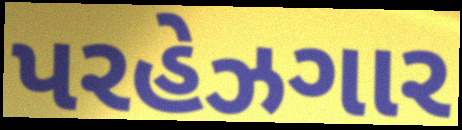
પરહેઝગાર